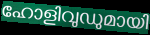
ഹോളിവുഡുമായി